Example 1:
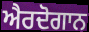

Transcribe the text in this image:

ਐਰਦੋਗਾਨ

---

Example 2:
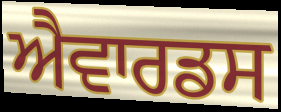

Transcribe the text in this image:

ਐਵਾਰਡਸ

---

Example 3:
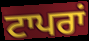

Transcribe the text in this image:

ਟਾਪਰਾਂ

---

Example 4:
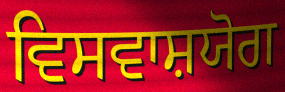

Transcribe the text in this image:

ਵਿਸਵਾਸ਼ਯੋਗ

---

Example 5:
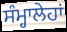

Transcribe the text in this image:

ਸੰਮ੍ਹ੍ਹਾਲੇਹਾਂ